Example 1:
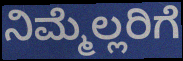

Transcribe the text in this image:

ನಿಮ್ಮೆಲ್ಲರಿಗೆ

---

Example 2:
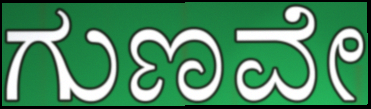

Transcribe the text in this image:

ಗುಣವೇ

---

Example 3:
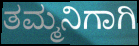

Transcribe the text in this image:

ತಮ್ಮನಿಗಾಗಿ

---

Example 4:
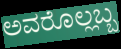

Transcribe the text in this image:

ಅವರೊಲ್ಲಬ್ಬ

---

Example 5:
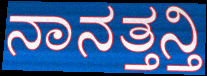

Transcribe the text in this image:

ನಾನತ್ತನ್ತಿ